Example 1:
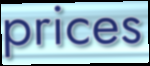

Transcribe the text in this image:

prices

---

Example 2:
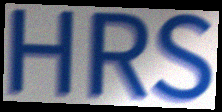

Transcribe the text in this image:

HRS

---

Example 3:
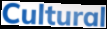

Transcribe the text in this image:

Cultural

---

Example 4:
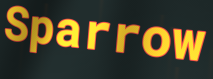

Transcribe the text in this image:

Sparrow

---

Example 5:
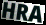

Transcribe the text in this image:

HRA